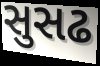
સુસઢ